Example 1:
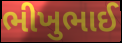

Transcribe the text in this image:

ભીખુભાઈ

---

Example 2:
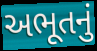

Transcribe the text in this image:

અભૂતનું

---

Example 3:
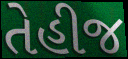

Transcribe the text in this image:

તેહીજ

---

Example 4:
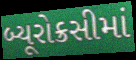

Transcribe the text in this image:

બ્યૂરોક્રસીમાં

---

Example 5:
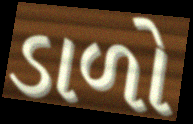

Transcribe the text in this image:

ડાળો